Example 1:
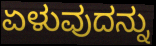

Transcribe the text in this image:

ಏಳುವುದನ್ನು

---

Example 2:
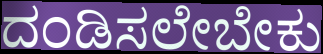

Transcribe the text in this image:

ದಂಡಿಸಲೇಬೇಕು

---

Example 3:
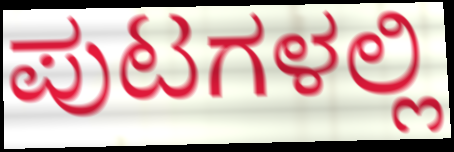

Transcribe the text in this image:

ಪುಟಗಳಲ್ಲಿ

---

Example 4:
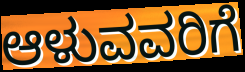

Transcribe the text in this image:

ಆಳುವವರಿಗೆ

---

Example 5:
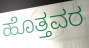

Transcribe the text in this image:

ಹೊತ್ತವರ